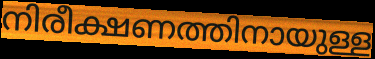
നിരീക്ഷണത്തിനായുള്ള